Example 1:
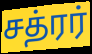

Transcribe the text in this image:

சத்ரர்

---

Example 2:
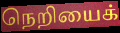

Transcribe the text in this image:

நெறியைக்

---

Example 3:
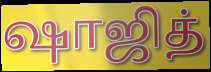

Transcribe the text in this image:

ஷாஜித்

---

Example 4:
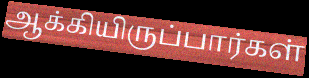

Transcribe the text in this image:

ஆக்கியிருப்பார்கள்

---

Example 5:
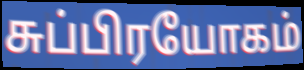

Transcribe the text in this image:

சுப்பிரயோகம்